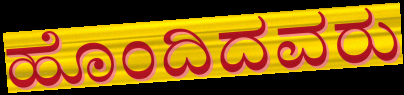
ಹೊಂದಿದವರು